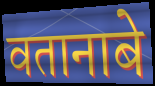
वतानाबे